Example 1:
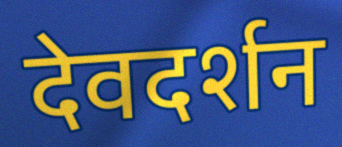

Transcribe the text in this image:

देवदर्शन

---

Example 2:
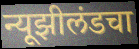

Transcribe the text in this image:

न्यूझीलंडचा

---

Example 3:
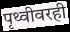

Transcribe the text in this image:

पृथ्वीवरही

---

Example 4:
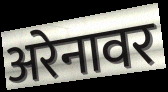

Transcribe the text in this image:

अरेनावर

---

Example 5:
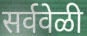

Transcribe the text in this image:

सर्ववेळी